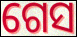
ଗେସ